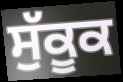
ਸੁੱਕੂਕ